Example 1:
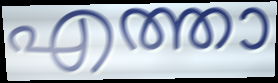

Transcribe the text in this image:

എത്താ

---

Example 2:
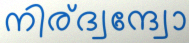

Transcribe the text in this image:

നിര്ദ്വന്ദ്വോ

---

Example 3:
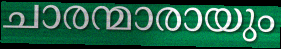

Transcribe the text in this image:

ചാരന്മാരായും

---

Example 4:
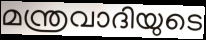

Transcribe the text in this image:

മന്ത്രവാദിയുടെ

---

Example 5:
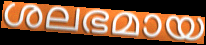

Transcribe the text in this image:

ശലഭമായ